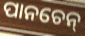
ପାନଚେନ୍